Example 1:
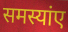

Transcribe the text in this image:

समस्यांए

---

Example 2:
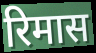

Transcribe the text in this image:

रिमास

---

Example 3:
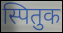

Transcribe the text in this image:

स्पितुक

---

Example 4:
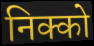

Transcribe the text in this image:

निक्को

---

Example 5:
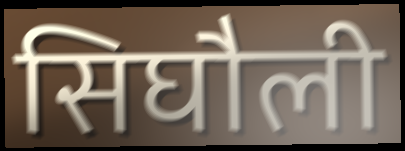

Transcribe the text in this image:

सिघौली